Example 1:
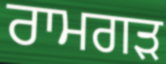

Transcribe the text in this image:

ਰਾਮਗੜ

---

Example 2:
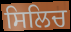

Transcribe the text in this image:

ਸਿਲਿਚ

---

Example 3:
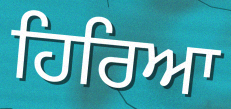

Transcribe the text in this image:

ਹਿਰਿਆ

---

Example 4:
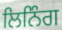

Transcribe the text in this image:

ਲਿਨਿੰਗ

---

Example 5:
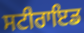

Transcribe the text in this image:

ਸਟੀਰਾਇਡ